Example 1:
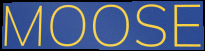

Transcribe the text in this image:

MOOSE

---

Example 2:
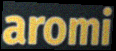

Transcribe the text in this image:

aromi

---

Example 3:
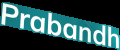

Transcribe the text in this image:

Prabandh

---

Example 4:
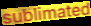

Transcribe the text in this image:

sublimated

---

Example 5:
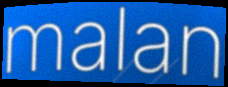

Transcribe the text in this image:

malan